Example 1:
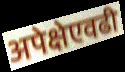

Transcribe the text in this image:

अपेक्षेएवढी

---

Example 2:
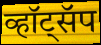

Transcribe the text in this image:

व्हॉट्सॅप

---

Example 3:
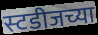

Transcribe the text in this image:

स्टडीजच्या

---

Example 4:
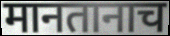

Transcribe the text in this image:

मानतानाच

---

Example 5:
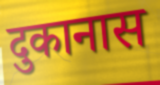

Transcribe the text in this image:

दुकानास